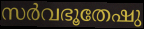
സർവഭൂതേഷു